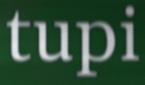
tupi